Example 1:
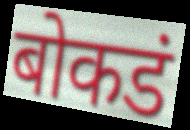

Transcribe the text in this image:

बोकडं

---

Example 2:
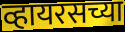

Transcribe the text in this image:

व्हायरसच्या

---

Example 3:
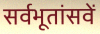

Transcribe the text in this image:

सर्वभूतांसवें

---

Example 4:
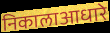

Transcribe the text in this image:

निकालाआधारे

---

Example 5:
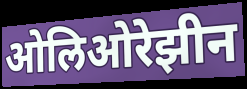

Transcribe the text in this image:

ओलिओरेझीन